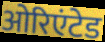
ओरिएंटेड